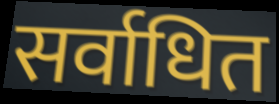
सर्वाधित